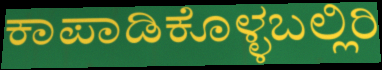
ಕಾಪಾಡಿಕೊಳ್ಳಬಲ್ಲಿರಿ